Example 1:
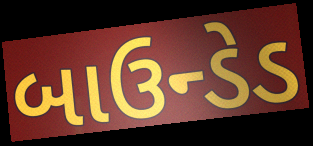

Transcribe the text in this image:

બાઉન્ડેડ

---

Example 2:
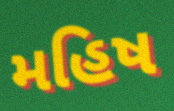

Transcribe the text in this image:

મહિષ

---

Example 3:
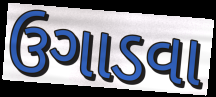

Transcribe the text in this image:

ઉગાડવા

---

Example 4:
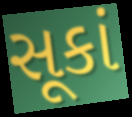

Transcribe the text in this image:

સૂકાં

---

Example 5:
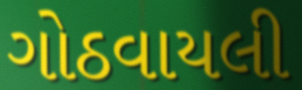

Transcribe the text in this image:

ગોઠવાયલી